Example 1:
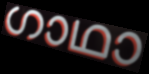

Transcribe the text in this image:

ഗാഥാ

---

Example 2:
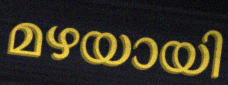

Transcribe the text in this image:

മഴയായി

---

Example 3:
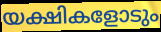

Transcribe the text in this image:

യക്ഷികളോടും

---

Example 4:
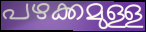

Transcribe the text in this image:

പഴക്കമുള്ള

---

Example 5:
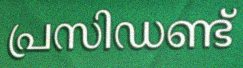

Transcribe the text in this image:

പ്രസിഡണ്ട്